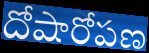
దోషారోపణ